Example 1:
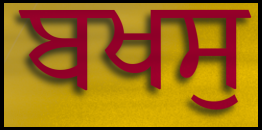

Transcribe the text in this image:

ਬਖਸੁ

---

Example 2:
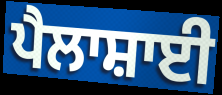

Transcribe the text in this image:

ਪੈਲਾਸ਼ਾਈ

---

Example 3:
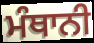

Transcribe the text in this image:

ਮੰਥਾਨੀ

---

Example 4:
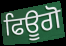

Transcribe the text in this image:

ਫਿਊਗੋ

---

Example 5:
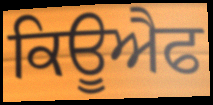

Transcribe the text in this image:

ਕਿਊਐਫ